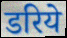
डरिये